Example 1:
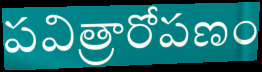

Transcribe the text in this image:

పవిత్రారోపణం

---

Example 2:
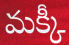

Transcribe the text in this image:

మక్కీ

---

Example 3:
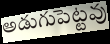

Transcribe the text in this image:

అడుగుపెట్టవు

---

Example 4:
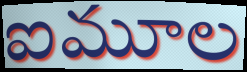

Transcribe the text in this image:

ఐమూల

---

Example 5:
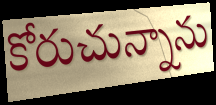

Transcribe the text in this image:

కోరుచున్నాను